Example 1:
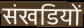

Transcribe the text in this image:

संखडियों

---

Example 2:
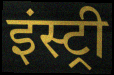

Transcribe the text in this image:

इंस्ट्री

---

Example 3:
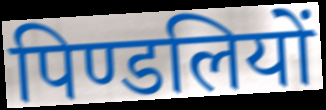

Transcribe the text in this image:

पिण्डलियों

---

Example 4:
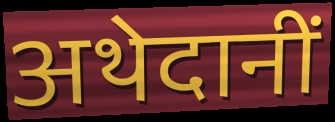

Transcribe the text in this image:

अथेदानीं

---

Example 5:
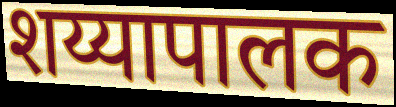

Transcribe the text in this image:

शय्यापालक